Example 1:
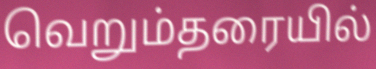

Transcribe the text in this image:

வெறும்தரையில்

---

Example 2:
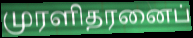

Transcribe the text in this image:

முரளிதரனைப்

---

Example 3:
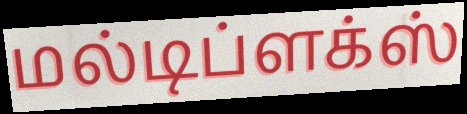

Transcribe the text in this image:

மல்டிப்ளக்ஸ்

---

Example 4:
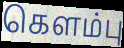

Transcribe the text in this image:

கௌம்பு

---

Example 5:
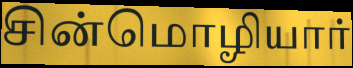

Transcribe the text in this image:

சின்மொழியார்